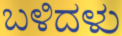
ಬಳಿದಳು